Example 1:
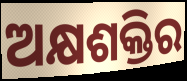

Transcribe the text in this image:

ଅକ୍ଷଶକ୍ତିର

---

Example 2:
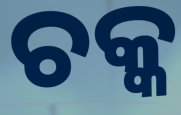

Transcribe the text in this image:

ଚକ୍କ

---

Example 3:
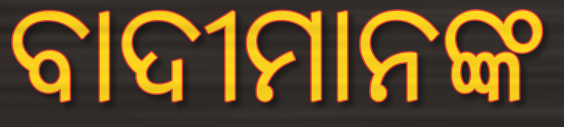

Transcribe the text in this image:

ବାଦୀମାନଙ୍କ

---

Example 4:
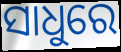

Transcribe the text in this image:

ସାଧୁରେ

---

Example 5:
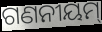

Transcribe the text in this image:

ଗଣନୀୟମ୍